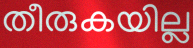
തീരുകയില്ല